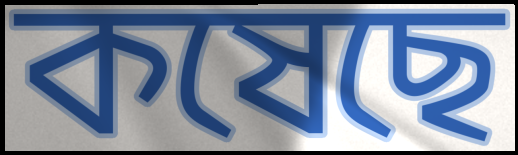
কষেছে